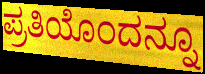
ಪ್ರತಿಯೊಂದನ್ನೂ